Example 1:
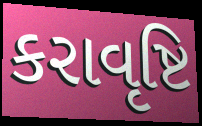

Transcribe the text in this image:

કરાવૃષ્ટિ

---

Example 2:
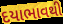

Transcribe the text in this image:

દયાભાવથી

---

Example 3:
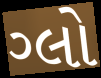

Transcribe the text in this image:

ગ્લો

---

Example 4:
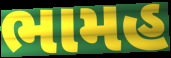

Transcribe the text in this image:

ભામહ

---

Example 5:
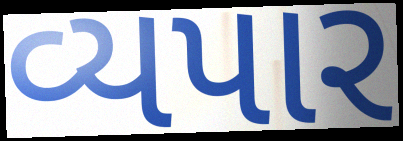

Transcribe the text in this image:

વ્યપાર